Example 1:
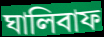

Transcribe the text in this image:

ঘালিবাফ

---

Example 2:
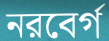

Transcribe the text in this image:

নরবের্গ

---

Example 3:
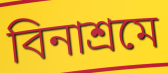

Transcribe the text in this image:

বিনাশ্রমে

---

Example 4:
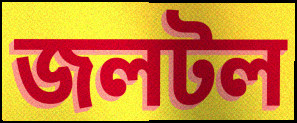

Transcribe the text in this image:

জলটল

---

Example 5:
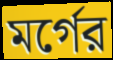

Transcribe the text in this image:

মর্গের